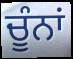
ਚੂੰਨਾਂ